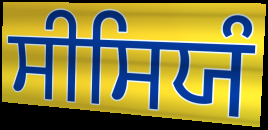
ਸੀਸਿਯੰ